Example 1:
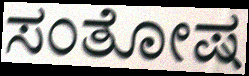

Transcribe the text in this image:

ಸಂತೋಷ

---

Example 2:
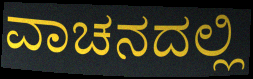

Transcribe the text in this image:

ವಾಚನದಲ್ಲಿ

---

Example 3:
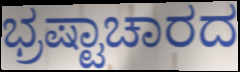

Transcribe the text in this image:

ಭ್ರಷ್ಟಾಚಾರದ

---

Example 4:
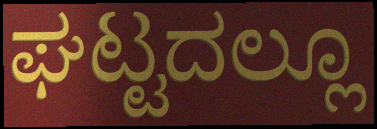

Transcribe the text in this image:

ಘಟ್ಟದಲ್ಲೂ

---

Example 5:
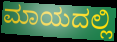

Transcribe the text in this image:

ಮಾಯದಲ್ಲಿ